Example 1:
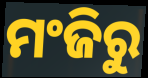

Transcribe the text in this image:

ମଂଜିରୁ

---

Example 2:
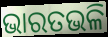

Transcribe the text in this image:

ଭାରତଭଳି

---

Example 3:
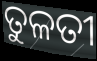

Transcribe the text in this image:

ତୁଳତୀ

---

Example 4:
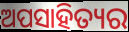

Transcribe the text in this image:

ଅପସାହିତ୍ୟର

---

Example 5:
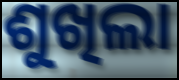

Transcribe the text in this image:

ଶୁଖିଲା